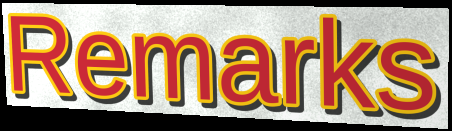
Remarks